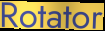
Rotator